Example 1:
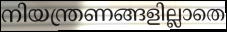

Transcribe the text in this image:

നിയന്ത്രണങ്ങളില്ലാതെ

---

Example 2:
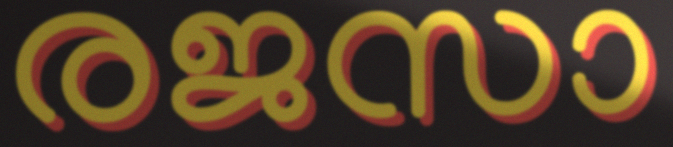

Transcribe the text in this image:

രജസാ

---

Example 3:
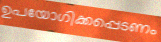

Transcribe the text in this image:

ഉപയോഗിക്കപ്പെടണം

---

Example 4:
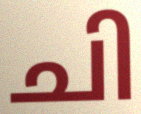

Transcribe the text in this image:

ചി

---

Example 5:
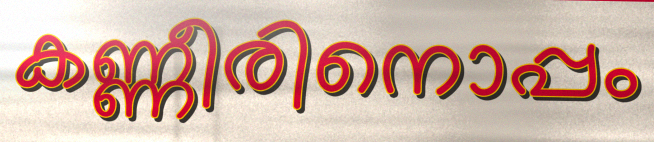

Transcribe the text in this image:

കണ്ണീരിനൊപ്പം